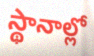
స్థానాల్లో